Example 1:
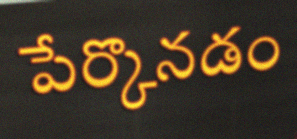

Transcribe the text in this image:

పేర్కొనడం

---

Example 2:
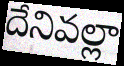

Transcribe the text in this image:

దేనివల్లా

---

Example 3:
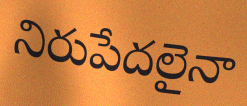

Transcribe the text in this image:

నిరుపేదలైనా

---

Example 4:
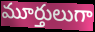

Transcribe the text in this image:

మూర్తులుగా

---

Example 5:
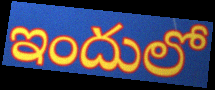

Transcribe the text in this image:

ఇందులో